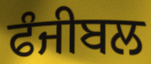
ਫੰਜੀਬਲ